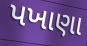
પખાણા